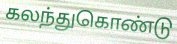
கலந்துகொண்டு